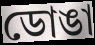
ডোঙা